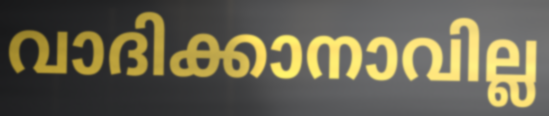
വാദിക്കാനാവില്ല